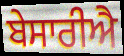
ਬੇਸਾਰੀਐ